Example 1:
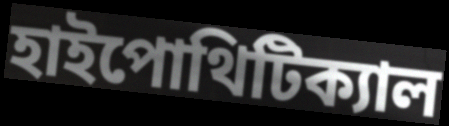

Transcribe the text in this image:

হাইপোথিটিক্যাল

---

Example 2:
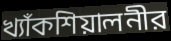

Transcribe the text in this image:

খ্যাঁকশিয়ালনীর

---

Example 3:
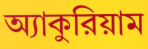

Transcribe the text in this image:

অ্যাকুরিয়াম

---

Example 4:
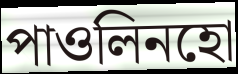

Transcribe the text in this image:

পাওলিনহো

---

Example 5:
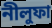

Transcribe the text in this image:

নীলুফা